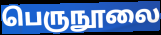
பெருநூலை